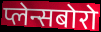
प्लेन्सबोरो